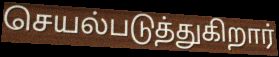
செயல்படுத்துகிறார்